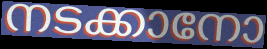
നടക്കാനോ